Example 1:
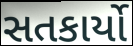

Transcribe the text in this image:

સતકાર્યો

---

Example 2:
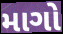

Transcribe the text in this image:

માગો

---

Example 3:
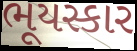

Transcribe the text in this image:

ભૂયસ્કાર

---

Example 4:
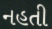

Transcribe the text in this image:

નહતી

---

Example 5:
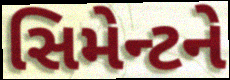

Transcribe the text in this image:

સિમેન્ટને